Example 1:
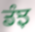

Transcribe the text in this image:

ਡੰਝ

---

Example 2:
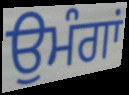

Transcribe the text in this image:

ਉਮੰਗਾਂ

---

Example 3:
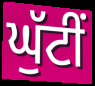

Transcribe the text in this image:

ਘੁੱਟੀਂ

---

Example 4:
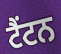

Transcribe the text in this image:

ਟੈਂਟਨ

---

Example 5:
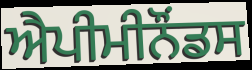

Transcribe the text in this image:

ਐਪੀਮੀਨੌਂਡਸ